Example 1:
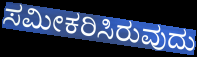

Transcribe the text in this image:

ಸಮೀಕರಿಸಿರುವುದು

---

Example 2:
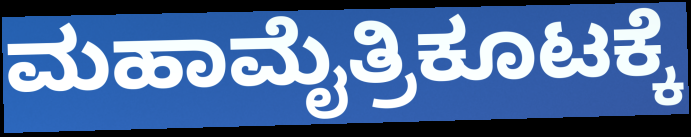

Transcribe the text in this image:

ಮಹಾಮೈತ್ರಿಕೂಟಕ್ಕೆ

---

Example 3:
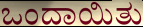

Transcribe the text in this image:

ಒಂದಾಯಿತು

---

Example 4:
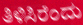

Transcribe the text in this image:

ತಿಳಿಸಿರೆಂದು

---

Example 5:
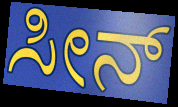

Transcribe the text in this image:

ಸೀನ್